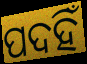
ପଦହିଁ